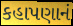
કહાપણાનં